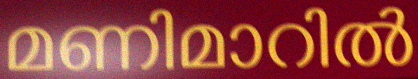
മണിമാറിൽ